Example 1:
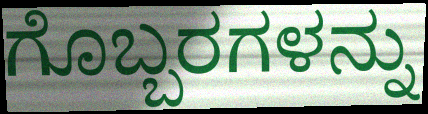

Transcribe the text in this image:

ಗೊಬ್ಬರಗಳನ್ನು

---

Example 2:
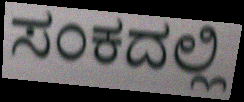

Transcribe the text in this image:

ಸಂಕದಲ್ಲಿ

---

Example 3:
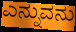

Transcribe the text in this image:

ಎನ್ನುವನು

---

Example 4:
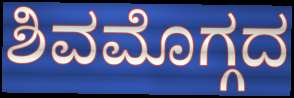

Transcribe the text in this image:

ಶಿವಮೊಗ್ಗದ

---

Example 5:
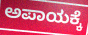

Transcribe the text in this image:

ಅಪಾಯಕ್ಕೆ